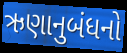
ઋણાનુબંધનો